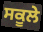
ਸਕੂਲੇ